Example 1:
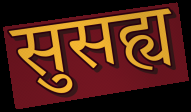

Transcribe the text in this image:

सुसह्य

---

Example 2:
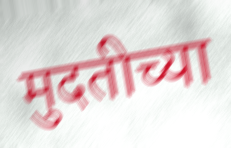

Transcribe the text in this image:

मुदतीच्या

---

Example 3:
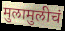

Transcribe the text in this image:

मुलामुलीचं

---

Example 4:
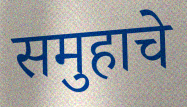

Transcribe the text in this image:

समुहाचे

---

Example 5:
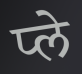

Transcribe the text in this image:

प्ले